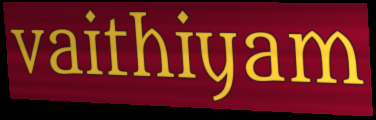
vaithiyam